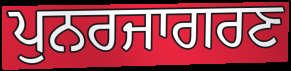
ਪੁਨਰਜਾਗਰਣ